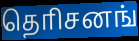
தெரிசனங்